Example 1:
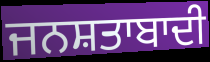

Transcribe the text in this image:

ਜਨਸ਼ਤਾਬਾਦੀ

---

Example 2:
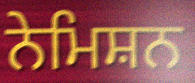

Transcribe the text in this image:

ਨੇਮਿਸ਼ਨ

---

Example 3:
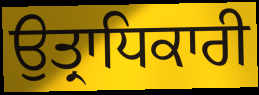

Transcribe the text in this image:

ਉਤ੍ਰਾਧਿਕਾਰੀ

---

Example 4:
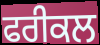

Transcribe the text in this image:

ਫਰੀਕਲ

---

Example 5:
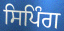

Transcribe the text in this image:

ਸਿਪਿੰਗ